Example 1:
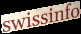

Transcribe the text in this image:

swissinfo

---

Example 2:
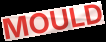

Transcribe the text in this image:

MOULD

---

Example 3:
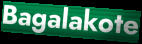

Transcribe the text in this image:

Bagalakote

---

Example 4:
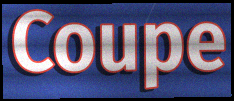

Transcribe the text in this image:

Coupe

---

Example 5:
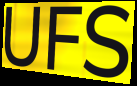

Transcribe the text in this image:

UFS